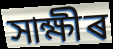
সাক্ষীৰ